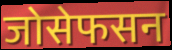
जोसेफसन